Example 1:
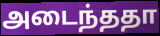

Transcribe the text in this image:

அடைந்ததா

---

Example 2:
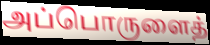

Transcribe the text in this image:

அப்பொருளைத்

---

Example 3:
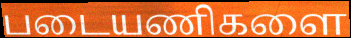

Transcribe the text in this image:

படையணிகளை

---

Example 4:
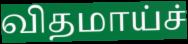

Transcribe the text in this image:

விதமாய்ச்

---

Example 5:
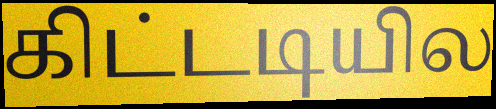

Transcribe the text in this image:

கிட்டடியில